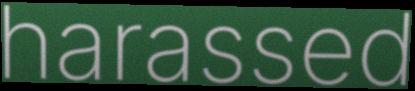
harassed